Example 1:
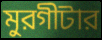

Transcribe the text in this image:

মুরগীটার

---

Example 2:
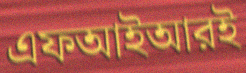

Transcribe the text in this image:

এফআইআরই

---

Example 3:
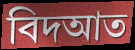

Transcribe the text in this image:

বিদআত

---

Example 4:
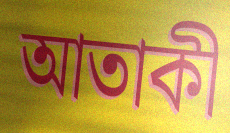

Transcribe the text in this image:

আতাকী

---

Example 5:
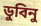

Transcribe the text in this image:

ডুবিনু